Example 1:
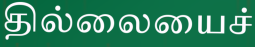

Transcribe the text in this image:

தில்லையைச்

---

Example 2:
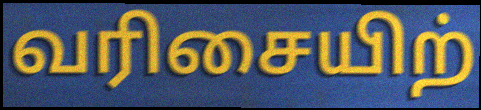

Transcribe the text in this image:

வரிசையிற்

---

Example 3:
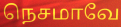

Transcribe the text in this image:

நெசமாவே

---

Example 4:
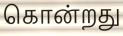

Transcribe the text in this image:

கொன்றது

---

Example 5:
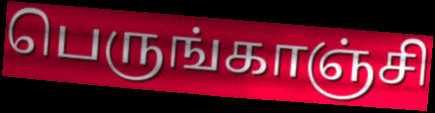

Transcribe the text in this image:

பெருங்காஞ்சி